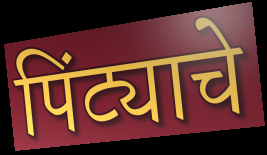
पिंट्याचे